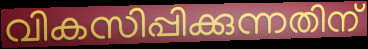
വികസിപ്പിക്കുന്നതിന്